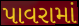
પાવરામાં